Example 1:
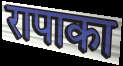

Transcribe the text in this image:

रापाका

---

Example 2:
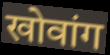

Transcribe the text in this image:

खोवांग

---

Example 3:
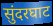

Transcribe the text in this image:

सुंदरघाट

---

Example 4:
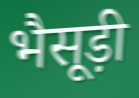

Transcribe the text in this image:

भैसूड़ी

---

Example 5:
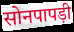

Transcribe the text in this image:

सोनपापड़ी